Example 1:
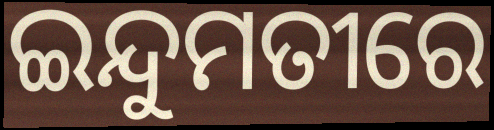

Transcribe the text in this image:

ଇନ୍ଦୁମତୀରେ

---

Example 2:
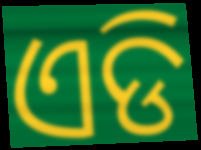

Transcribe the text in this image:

ଏଡି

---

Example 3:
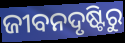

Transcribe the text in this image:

ଜୀବନଦୃଷ୍ଟିରୁ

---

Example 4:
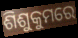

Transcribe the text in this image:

ଶିଶୁକୁମରେ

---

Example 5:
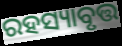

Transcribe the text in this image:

ରହସ୍ୟାବୃତ୍ତ